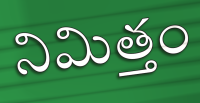
నిమిత్తం